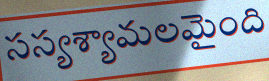
సస్యశ్యామలమైంది